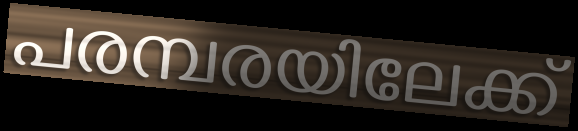
പരമ്പരയിലേക്ക്